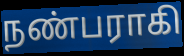
நண்பராகி